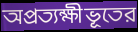
অপ্রত্যক্ষীভূতের